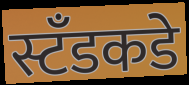
स्टॅंडकडे